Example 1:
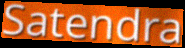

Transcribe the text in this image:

Satendra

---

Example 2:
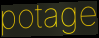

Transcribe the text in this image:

potage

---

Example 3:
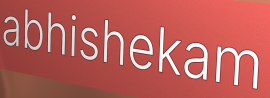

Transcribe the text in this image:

abhishekam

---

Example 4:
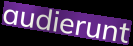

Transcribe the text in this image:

audierunt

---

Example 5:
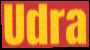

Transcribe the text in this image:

Udra